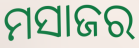
ମସାଜର